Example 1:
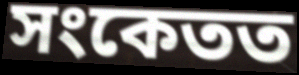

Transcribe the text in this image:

সংকেতত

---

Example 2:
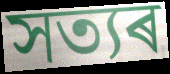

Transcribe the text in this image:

সত্যৰ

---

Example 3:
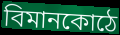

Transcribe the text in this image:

বিমানকোঠে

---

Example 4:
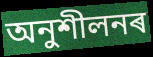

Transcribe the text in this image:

অনুশীলনৰ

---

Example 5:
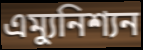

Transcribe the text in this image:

এম্যুনিশ্যন